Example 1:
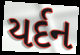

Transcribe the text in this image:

યર્દન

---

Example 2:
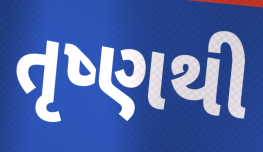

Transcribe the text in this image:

તૃષ્ણથી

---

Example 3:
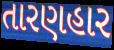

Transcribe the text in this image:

તારણહાર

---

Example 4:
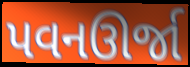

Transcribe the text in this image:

પવનઊર્જા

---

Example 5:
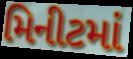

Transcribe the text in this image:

મિનીટમાં